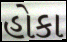
હોકા